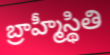
బ్రాహ్మీస్థితి